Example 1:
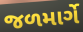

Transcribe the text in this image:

જળમાર્ગે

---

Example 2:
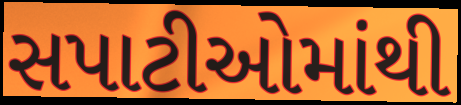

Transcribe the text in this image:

સપાટીઓમાંથી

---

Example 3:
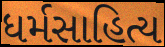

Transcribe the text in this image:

ધર્મસાહિત્ય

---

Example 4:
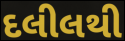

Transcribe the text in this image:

દલીલથી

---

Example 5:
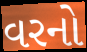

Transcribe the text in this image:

વરનો